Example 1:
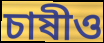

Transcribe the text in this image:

চাষীও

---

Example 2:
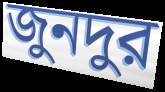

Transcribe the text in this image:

জুনদুর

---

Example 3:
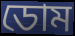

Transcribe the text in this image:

ডোম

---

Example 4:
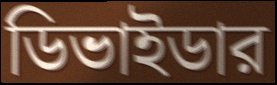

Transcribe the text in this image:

ডিভাইডার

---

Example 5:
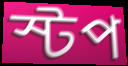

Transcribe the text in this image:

স্টপ